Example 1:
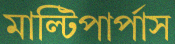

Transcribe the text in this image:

মাল্টিপার্পাস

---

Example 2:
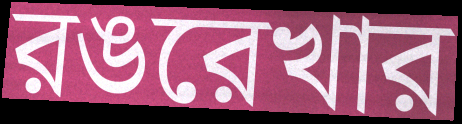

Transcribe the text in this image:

রঙরেখার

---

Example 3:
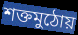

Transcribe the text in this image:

শক্তমুঠোয়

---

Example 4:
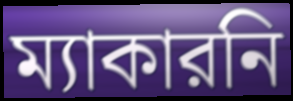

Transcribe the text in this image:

ম্যাকারনি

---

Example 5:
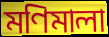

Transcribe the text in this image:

মণিমালা